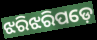
ଝରିଝରିପଡ଼େ